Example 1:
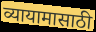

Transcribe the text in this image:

व्यायामासाठी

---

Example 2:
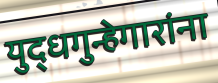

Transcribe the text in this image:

युद्धगुन्हेगारांना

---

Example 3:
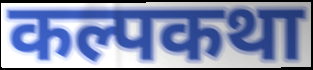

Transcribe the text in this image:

कल्पकथा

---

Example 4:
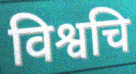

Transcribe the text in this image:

विश्वचि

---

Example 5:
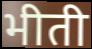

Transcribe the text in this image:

भीती